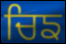
ਚਿਙ